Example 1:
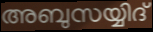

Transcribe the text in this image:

അബുസയ്യിദ്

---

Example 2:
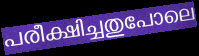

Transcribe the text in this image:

പരീക്ഷിച്ചതുപോലെ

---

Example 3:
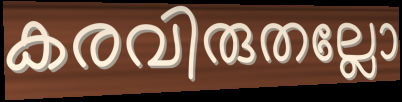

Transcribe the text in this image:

കരവിരുതല്ലോ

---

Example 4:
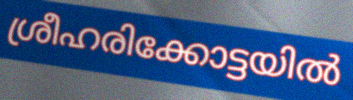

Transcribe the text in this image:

ശ്രീഹരിക്കോട്ടയിൽ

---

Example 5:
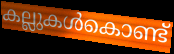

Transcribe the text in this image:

കല്ലുകൾകൊണ്ട്